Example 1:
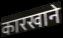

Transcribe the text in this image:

कारखाने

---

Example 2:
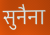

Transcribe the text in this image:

सुनैना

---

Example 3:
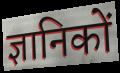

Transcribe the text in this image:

ज्ञानिकों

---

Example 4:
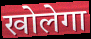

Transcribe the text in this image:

खोलेगा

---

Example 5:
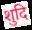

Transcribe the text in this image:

शुदि